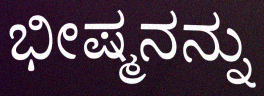
ಭೀಷ್ಮನನ್ನು